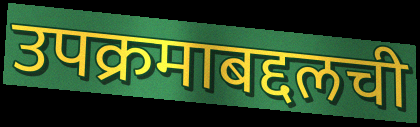
उपक्रमाबद्दलची